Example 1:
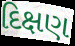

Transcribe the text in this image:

દિક્ષણ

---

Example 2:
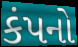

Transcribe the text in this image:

કંપનો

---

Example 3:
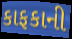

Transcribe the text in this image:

કાફકાની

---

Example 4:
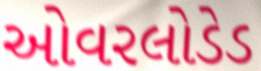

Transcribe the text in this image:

ઓવરલોડેડ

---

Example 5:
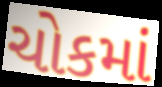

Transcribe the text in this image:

ચોકમાં